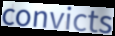
convicts